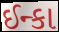
ઈન્કા